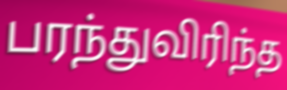
பரந்துவிரிந்த